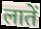
लातें